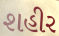
શહીર